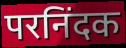
परनिंदक